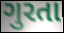
ગુરતા